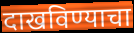
दाखविण्याचा